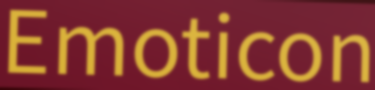
Emoticon